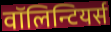
वॉलिन्टियर्स